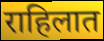
राहिलात